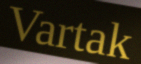
Vartak